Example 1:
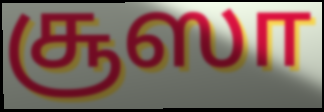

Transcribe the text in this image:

சூஸா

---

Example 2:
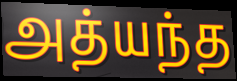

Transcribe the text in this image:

அத்யந்த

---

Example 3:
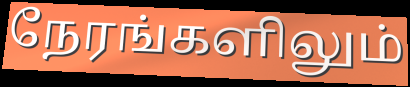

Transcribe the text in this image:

நேரங்களிலும்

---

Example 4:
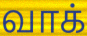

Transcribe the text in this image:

வாக்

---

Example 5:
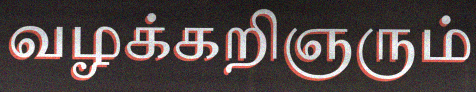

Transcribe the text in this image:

வழக்கறிஞரும்